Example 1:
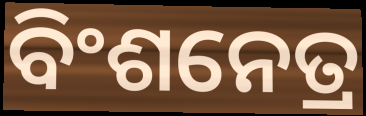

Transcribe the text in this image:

ବିଂଶନେତ୍ର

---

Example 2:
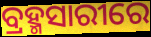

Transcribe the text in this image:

ବ୍ରହ୍ମସାରୀରେ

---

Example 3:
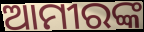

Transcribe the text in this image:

ଆମୀରଙ୍କ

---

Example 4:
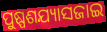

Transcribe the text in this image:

ପୁଷ୍ପଶଯ୍ୟାସଜାଇ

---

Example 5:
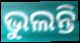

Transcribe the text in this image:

ଭୁଲନ୍ତି